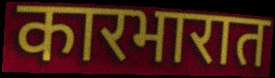
कारभारात